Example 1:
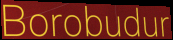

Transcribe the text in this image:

Borobudur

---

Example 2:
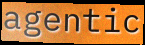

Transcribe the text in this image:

agentic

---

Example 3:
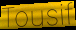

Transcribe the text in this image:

Tousif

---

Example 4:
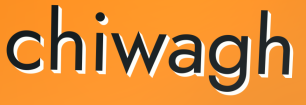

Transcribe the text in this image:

chiwagh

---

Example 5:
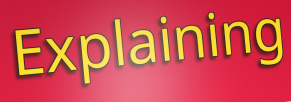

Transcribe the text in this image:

Explaining